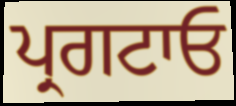
ਪ੍ਰਗਟਾਓ